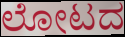
ಲೋಟದ